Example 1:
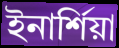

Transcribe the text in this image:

ইনার্শিয়া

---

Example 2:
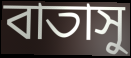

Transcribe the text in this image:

বাতাসু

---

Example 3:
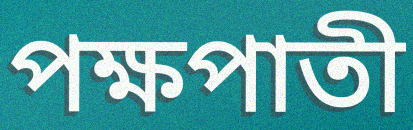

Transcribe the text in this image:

পক্ষপাতী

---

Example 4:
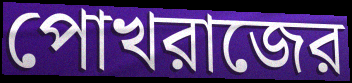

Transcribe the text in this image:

পোখরাজের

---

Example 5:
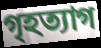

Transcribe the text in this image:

গৃহত্যাগ